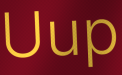
Uup